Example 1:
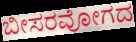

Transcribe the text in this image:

ಬೀಸರವೋಗದ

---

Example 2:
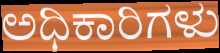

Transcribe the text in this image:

ಅಧಿಕಾರಿಗಳು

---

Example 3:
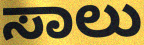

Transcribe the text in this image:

ಸಾಲು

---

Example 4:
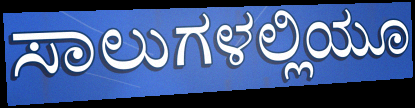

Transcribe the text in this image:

ಸಾಲುಗಳಲ್ಲಿಯೂ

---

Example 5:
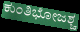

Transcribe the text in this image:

ಕುಂತಿಭೋಜಶ್ಚ